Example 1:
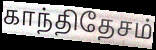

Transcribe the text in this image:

காந்திதேசம்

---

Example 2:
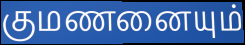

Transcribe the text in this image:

குமணனையும்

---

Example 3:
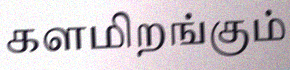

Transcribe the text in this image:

களமிறங்கும்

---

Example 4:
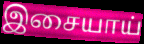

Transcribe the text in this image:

இசையாய்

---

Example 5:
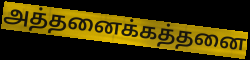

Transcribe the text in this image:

அத்தனைக்கத்தனை